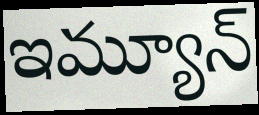
ఇమ్యూన్